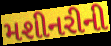
મશીનરીની